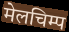
मेलचिम्प